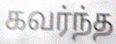
கவர்ந்த